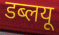
डब्लयू